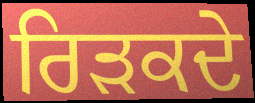
ਰਿੜਕਦੇ